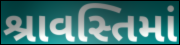
શ્રાવસ્તિમાં